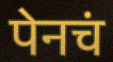
पेनचं